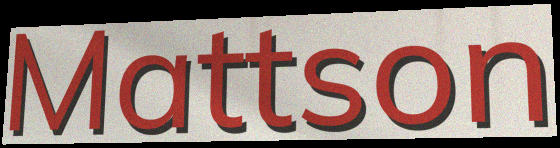
Mattson